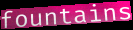
fountains